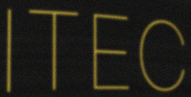
ITEC